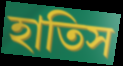
হাতিস